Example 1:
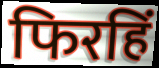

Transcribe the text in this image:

फिरहिं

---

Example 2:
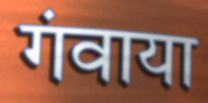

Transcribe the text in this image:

गंवाया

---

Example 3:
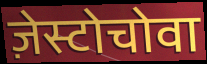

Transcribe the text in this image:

ज़ेस्टोचोवा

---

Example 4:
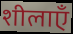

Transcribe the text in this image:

शीलाएँ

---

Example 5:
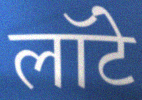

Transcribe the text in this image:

लॉटे